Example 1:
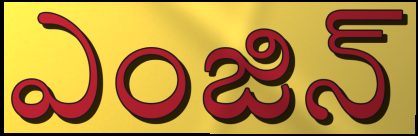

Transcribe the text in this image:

ఎంజిన్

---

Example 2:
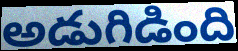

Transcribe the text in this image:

అడుగిడింది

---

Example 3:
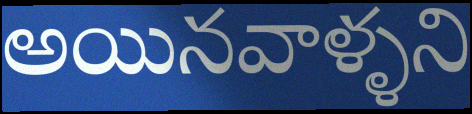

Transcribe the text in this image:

అయినవాళ్ళని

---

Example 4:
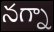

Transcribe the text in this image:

నగ్నా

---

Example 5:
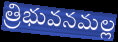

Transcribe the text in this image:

త్రిభువనమల్ల